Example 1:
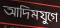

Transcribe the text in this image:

আদিমযুগে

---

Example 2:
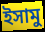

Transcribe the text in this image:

ইসামু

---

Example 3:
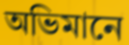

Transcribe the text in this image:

অভিমানে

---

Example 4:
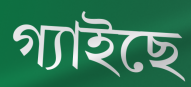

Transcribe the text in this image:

গ্যাইছে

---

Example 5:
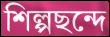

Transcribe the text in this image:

শিল্পছন্দে